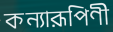
কন্যারূপিণী